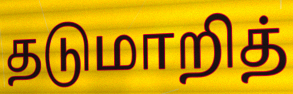
தடுமாறித்